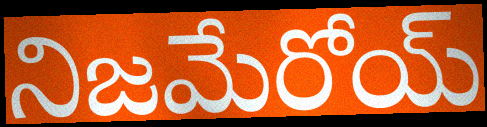
నిజమేరోయ్